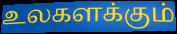
உலகளக்கும்